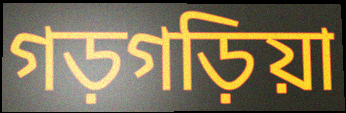
গড়গড়িয়া